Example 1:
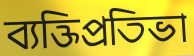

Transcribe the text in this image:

ব্যক্তিপ্রতিভা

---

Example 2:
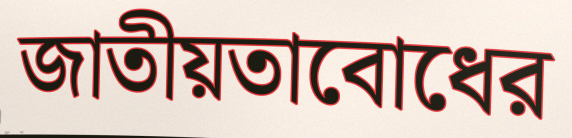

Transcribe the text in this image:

জাতীয়তাবোধের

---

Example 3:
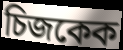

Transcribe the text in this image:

চিজকেক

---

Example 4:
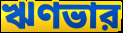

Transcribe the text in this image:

ঋণভার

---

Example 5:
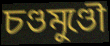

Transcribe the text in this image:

চণ্ডমুণ্ডৌ